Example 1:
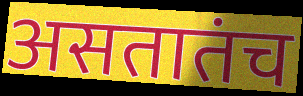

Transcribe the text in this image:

असतातंच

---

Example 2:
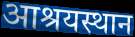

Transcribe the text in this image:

आश्रयस्थान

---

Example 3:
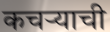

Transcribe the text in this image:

कचऱ्याची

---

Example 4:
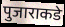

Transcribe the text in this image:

पुजाराकडे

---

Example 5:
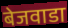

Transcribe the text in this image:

बेजवाडा